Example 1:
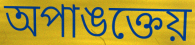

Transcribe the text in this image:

অপাঙক্তেয়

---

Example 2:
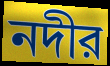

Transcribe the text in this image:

নদীর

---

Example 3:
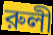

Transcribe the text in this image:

রুলী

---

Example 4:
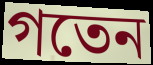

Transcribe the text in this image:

গতেন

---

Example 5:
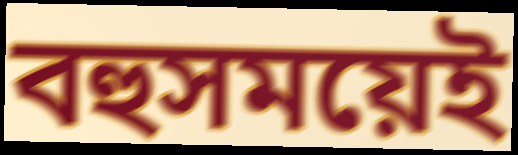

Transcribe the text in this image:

বহুসময়েই